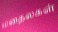
மதைலகள்